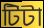
টিটা